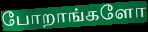
போறாங்களோ